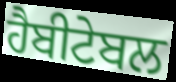
ਹੈਬੀਟੇਬਲ